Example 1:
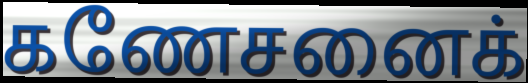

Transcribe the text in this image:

கணேசனைக்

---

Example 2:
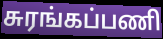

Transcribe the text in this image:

சுரங்கப்பணி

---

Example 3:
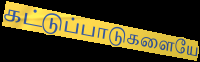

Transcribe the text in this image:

கட்டுப்பாடுகளையே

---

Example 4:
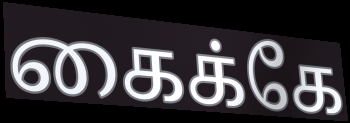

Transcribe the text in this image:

கைக்கே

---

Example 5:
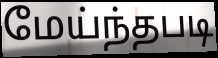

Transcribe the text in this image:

மேய்ந்தபடி